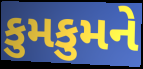
કુમકુમને